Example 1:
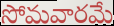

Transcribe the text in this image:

సోమవారమే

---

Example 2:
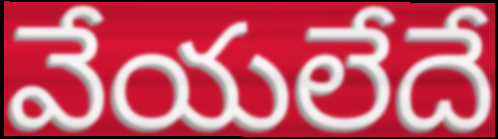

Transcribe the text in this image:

వేయలేదే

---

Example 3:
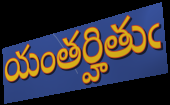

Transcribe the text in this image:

యంతర్హితుఁ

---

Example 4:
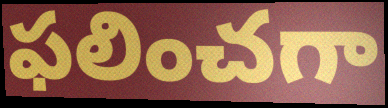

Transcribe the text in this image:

ఫలించగా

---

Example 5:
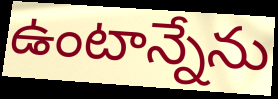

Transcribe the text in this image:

ఉంటాన్నేను